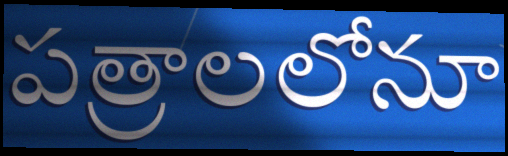
పత్రాలలోనూ